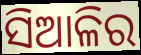
ସିଆଳିର